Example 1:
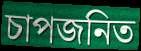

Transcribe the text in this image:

চাপজনিত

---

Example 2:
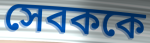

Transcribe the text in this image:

সেবককে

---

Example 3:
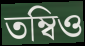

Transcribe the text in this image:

তম্বিও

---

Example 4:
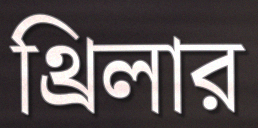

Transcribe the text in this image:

থ্রিলার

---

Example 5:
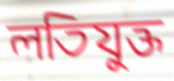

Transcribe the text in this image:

লতিযুক্ত